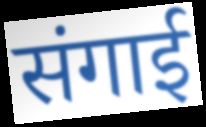
संगाई